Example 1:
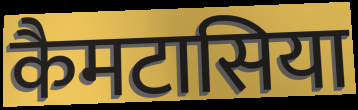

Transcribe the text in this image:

कैमटासिया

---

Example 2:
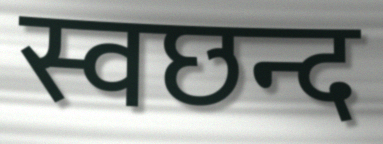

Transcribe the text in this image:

स्वछन्द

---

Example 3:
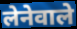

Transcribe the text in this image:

लेनेवाले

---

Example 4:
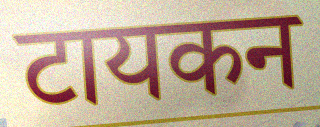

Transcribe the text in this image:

टायकन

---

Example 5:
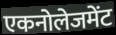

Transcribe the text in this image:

एकनोलेजमेंट